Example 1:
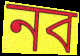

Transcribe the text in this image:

নব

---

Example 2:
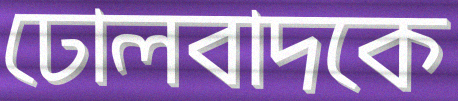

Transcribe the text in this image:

ঢোলবাদকে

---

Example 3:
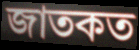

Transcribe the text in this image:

জাতকত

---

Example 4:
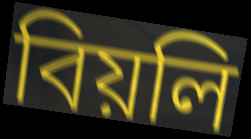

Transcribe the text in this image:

বিয়লি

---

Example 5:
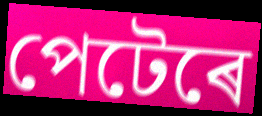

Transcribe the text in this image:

পেটেৰে